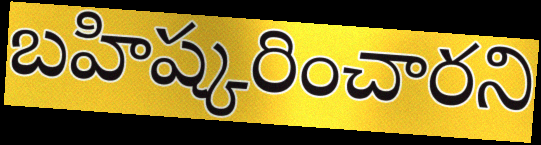
బహిష్కరించారని